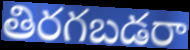
తిరగబడరా